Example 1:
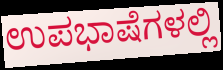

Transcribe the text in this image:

ಉಪಭಾಷೆಗಳಲ್ಲಿ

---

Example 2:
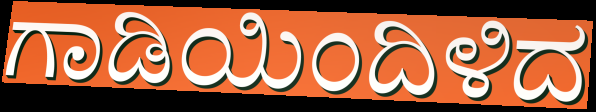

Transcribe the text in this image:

ಗಾಡಿಯಿಂದಿಳಿದ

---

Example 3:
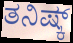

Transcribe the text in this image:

ತನಿಷ್ಕ್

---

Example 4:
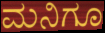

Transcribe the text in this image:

ಮನಿಗೂ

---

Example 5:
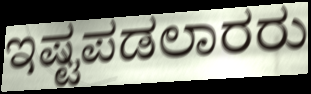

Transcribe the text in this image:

ಇಷ್ಟಪಡಲಾರರು